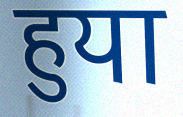
हुया